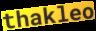
thakleo